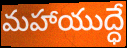
మహాయుద్ధే